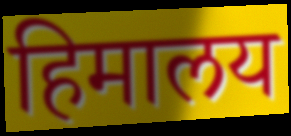
हिमालय